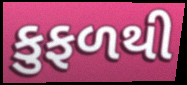
કુફળથી